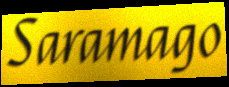
Saramago